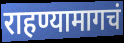
राहण्यामागचं